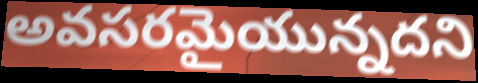
అవసరమైయున్నదని